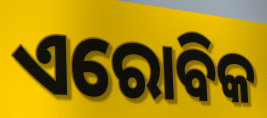
ଏରୋବିକ